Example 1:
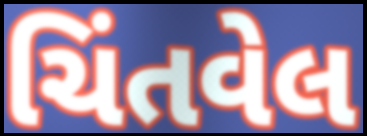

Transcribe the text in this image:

ચિંતવેલ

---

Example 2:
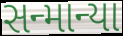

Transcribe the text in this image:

સન્માન્યા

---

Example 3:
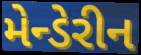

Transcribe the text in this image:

મેન્ડેરીન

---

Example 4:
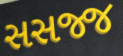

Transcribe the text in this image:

સસજ્જ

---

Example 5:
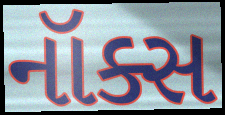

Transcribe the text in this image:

નૉક્સ